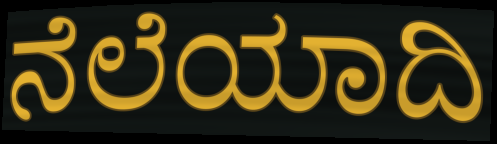
ನೆಲೆಯಾದಿ